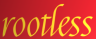
rootless